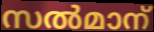
സൽമാന്